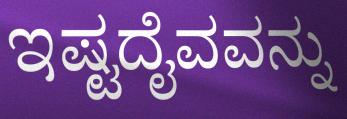
ಇಷ್ಟದೈವವನ್ನು